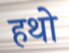
हथो